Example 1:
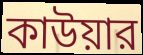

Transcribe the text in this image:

কাউয়ার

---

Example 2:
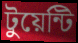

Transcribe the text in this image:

টুয়েন্টি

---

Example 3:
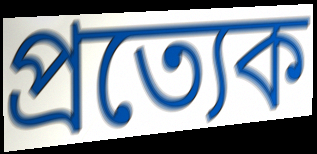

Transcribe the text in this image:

প্রত্যেক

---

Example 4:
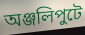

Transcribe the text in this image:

অঞ্জলিপুটে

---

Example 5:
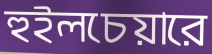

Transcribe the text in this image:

হুইলচেয়ারে